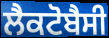
ਲੈਕਟੋਬੈਸੀ